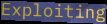
Exploiting